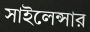
সাইলেন্সার